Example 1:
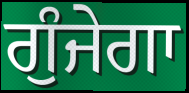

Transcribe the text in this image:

ਗੁੰਜੇਗਾ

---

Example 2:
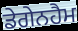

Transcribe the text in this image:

ਡੇਗੇਨਹੈਮ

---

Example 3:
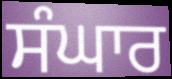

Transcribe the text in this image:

ਸੰਘਾਰ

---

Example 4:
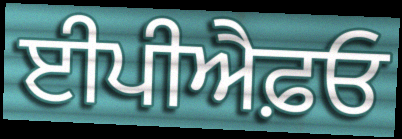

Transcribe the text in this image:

ਈਪੀਐਫ਼ਓ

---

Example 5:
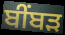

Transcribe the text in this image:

ਬੀੰਬੜ